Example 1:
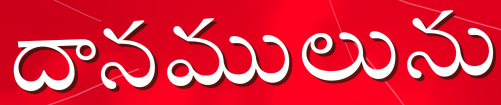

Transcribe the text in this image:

దానములును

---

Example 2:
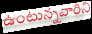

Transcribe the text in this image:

ఉంటున్నవారిని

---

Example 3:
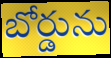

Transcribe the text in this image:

బోర్డును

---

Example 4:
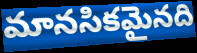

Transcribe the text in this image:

మానసికమైనది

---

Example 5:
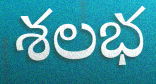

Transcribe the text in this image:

శలభ